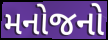
મનોજનો